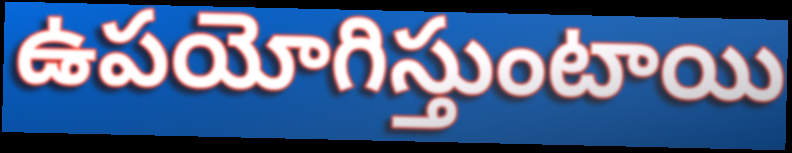
ఉపయోగిస్తుంటాయి